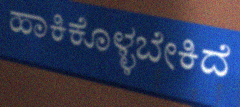
ಹಾಕಿಕೊಳ್ಳಬೇಕಿದೆ